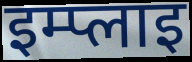
इम्प्लाइ